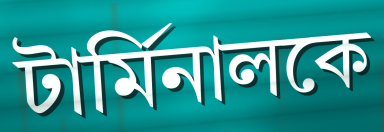
টার্মিনালকে